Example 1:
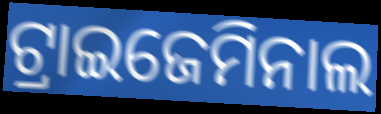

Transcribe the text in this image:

ଟ୍ରାଇଜେମିନାଲ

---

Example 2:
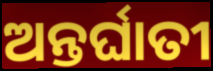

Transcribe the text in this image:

ଅନ୍ତର୍ଘାତୀ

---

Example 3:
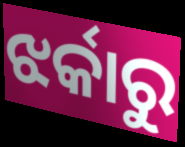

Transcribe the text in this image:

ଝର୍କାରୁ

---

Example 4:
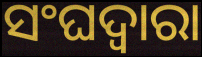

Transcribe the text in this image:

ସଂଘଦ୍ୱାରା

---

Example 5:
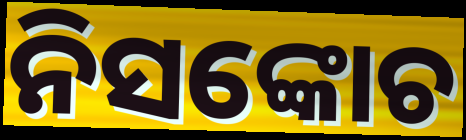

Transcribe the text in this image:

ନିସଙ୍କୋଚ